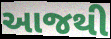
આજથી